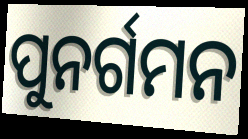
ପୁନର୍ଗମନ